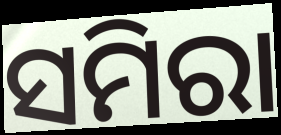
ସମିରା